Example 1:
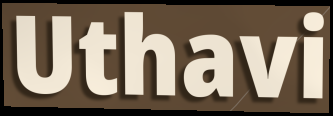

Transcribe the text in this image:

Uthavi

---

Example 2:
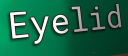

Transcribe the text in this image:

Eyelid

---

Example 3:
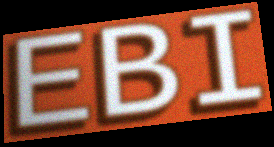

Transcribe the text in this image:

EBI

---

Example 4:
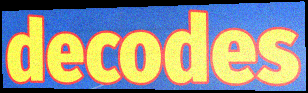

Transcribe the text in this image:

decodes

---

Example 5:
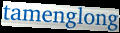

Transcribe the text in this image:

tamenglong